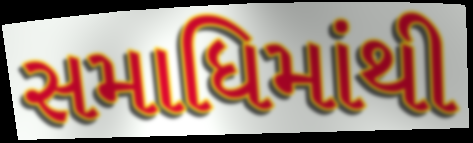
સમાધિમાંથી